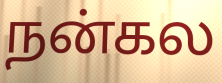
நன்கல